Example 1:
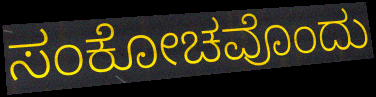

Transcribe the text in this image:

ಸಂಕೋಚವೊಂದು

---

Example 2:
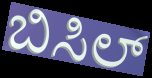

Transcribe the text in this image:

ಬಿಸಿಲ್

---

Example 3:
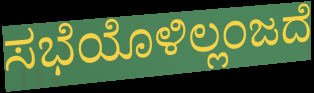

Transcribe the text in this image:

ಸಭೆಯೊಳಿಲ್ಲಂಜದೆ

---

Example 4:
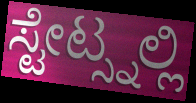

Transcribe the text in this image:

ಸ್ಟೇಟ್ಸ್ನಲ್ಲಿ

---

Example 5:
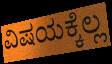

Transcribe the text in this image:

ವಿಷಯಕ್ಕೆಲ್ಲ